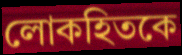
লোকহিতকে